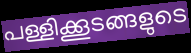
പള്ളിക്കൂടങ്ങളുടെ